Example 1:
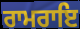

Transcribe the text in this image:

ਰਾਮਰਾਇ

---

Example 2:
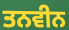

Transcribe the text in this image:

ਤਨਵੀਨ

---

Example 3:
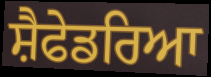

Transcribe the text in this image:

ਸ਼ੈਫੇਡਰਿਆ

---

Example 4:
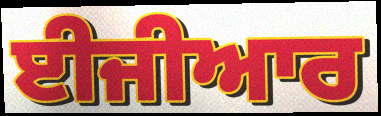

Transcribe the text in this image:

ਈਜੀਆਰ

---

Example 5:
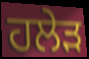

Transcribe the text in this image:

ਹਲੇੜ